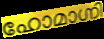
ഹോമാഗ്നി